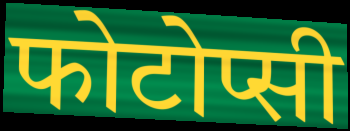
फोटोप्सी